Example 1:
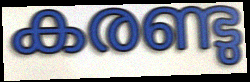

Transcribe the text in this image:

കരണ്ടു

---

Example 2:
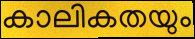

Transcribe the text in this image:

കാലികതയും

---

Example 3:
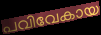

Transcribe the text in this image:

പവിവേകായ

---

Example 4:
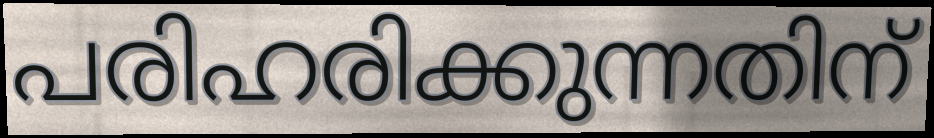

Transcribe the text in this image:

പരിഹരിക്കുന്നതിന്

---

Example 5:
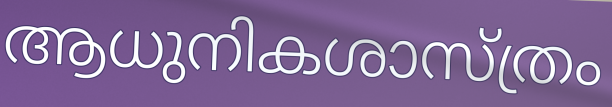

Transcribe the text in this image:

ആധുനികശാസ്ത്രം